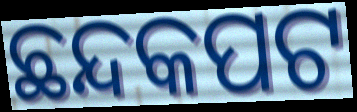
ଛନ୍ଦକପଟ